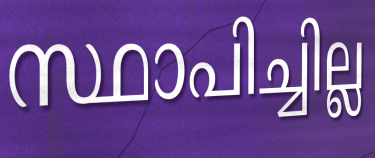
സ്ഥാപിച്ചില്ല